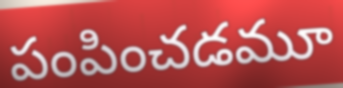
పంపించడమూ